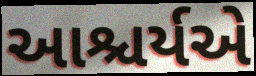
આશ્ચર્યએ